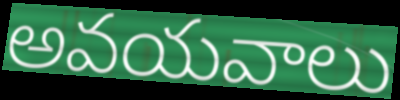
అవయవాలు